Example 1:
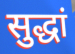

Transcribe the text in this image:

सुद्धां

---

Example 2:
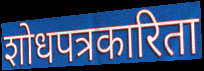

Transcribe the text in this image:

शोधपत्रकारिता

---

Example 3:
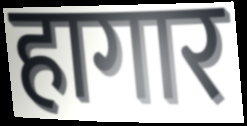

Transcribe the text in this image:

हागार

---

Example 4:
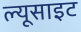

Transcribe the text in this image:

ल्यूसाइट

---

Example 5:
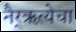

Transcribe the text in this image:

नैर्ऋत्येचा